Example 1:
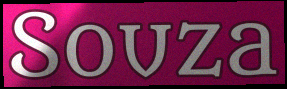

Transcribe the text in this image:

Souza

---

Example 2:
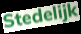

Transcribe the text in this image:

Stedelijk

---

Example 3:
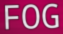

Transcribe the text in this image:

FOG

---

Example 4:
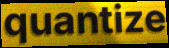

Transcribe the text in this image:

quantize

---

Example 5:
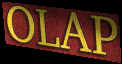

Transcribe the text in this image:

OLAP